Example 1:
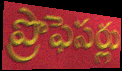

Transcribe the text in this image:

ప్రొఫెసర్లు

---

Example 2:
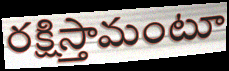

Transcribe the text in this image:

రక్షిస్తామంటూ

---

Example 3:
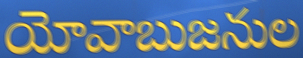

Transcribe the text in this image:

యోవాబుజనుల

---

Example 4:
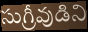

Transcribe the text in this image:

సుగ్రీవుడిని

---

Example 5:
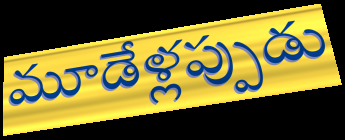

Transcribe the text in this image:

మూడేళ్లప్పుడు